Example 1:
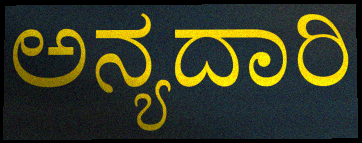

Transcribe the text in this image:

ಅನ್ಯದಾರಿ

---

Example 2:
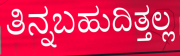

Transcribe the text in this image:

ತಿನ್ನಬಹುದಿತ್ತಲ್ಲ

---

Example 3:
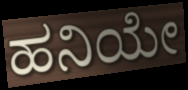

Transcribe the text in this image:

ಹನಿಯೇ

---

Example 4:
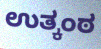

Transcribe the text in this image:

ಉತ್ಕಂಠ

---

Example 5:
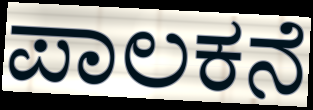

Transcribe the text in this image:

ಪಾಲಕನೆ